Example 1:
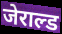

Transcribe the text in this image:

जेराल्ड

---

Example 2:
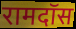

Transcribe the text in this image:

रामदॉस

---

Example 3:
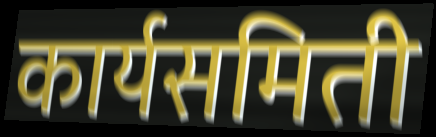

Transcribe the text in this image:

कार्यसमिती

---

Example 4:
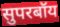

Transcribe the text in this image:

सुपरबॉय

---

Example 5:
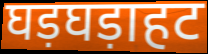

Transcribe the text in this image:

घड़घड़ाहट